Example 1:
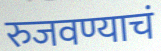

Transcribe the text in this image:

रुजवण्याचं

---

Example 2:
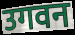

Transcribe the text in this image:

उगवन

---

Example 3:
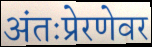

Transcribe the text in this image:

अंतःप्रेरणेवर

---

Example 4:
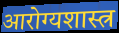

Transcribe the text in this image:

आरोग्यशास्त्र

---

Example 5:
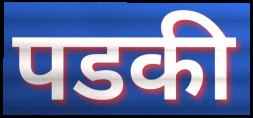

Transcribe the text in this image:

पडकी